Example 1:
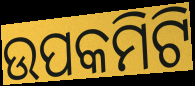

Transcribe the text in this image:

ଉପକମିଟି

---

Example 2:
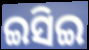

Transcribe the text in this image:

ଇସିଇ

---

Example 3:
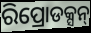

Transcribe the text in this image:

ରିପ୍ରୋଡକ୍ସନ୍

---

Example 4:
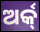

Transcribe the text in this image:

ଅର୍କ୍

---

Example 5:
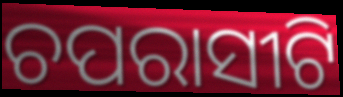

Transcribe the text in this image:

ଚପରାସୀଟି